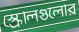
স্ক্রোলগুলোর